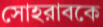
সোহরাবকে